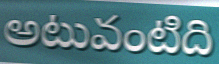
అటువంటిది